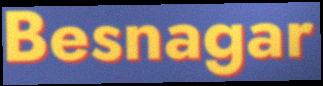
Besnagar